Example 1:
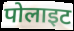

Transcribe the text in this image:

पोलाइट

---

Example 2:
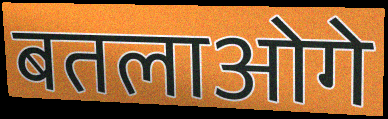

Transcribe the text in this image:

बतलाओगे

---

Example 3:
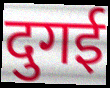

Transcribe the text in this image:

दुगई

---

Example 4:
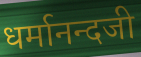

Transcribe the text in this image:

धर्मानन्दजी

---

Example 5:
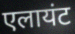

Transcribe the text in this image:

एलायंट